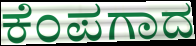
ಕೆಂಪಗಾದ